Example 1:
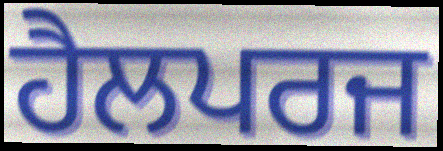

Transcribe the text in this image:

ਹੈਲਪਰਜ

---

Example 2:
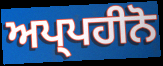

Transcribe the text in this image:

ਅਪ੍ਪਹੀਨੋ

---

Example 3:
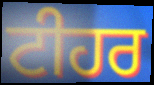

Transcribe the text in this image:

ਟੀਹਰ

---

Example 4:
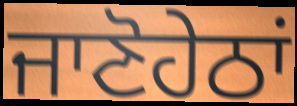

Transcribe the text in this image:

ਜਾਣੋਹੇਠਾਂ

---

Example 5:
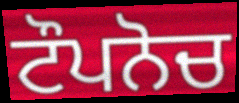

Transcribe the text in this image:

ਟੌਪਨੋਚ